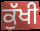
ਕੁੱਖੀ